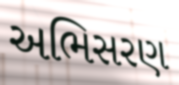
અભિસરણ